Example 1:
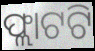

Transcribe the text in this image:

ଫ୍ଲାଟଟି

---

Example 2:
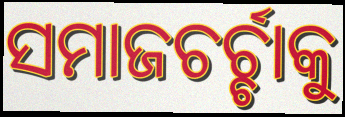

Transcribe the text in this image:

ସମାଜଚର୍ଚ୍ଚାକୁ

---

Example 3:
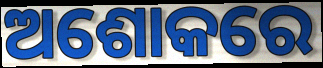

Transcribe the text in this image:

ଅଶୋକରେ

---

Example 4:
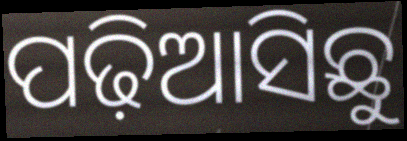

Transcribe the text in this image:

ପଢ଼ିଆସିଛୁ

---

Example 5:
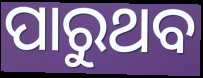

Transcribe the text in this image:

ପାରୁଥବ